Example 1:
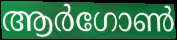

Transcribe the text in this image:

ആർഗോൺ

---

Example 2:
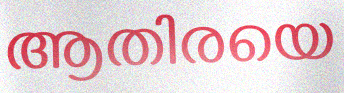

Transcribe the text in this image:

ആതിരയെ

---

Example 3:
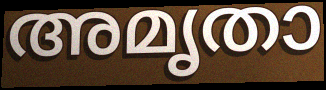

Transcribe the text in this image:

അമൃതാ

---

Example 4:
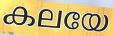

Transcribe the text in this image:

കലയേ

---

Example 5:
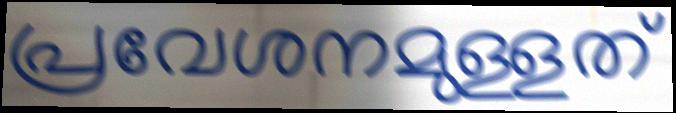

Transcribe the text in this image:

പ്രവേശനമുള്ളത്